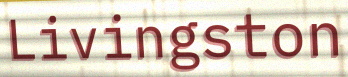
Livingston